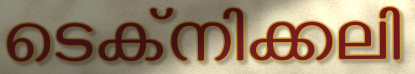
ടെക്‌നിക്കലി